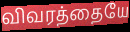
விவரத்தையே